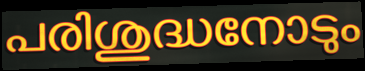
പരിശുദ്ധനോടും